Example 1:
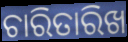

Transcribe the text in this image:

ଚାରିତାରିଖ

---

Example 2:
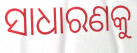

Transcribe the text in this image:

ସାଧାରଣକୁ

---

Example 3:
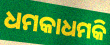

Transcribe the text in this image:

ଧମକାଧମକି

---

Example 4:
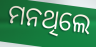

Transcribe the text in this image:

ମନଥିଲେ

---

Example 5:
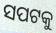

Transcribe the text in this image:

ସପଟକୁ